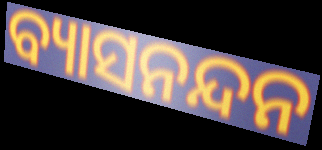
ବ୍ୟାସନନ୍ଦନ